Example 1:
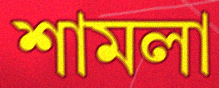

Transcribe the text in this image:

শামলা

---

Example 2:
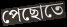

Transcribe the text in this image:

পেছোতে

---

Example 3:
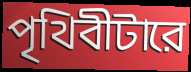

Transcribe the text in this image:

পৃথিবীটারে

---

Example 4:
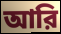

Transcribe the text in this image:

আরি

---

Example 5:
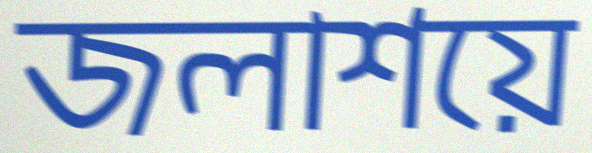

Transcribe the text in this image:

জলাশয়ে